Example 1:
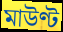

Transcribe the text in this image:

মাউণ্ট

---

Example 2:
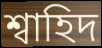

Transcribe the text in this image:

শ্বাহিদ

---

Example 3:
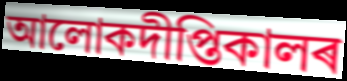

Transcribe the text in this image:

আলোকদীপ্তিকালৰ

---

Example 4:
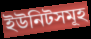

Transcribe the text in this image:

ইউনিটসমূহ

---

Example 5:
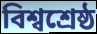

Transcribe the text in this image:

বিশ্বশ্ৰেষ্ঠ